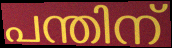
പന്തിന്